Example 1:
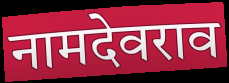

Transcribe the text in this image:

नामदेवराव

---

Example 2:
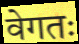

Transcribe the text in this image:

वेगतः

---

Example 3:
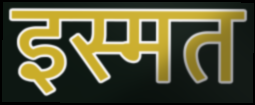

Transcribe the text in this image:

इस्मत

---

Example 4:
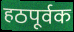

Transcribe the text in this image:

हठपूर्वक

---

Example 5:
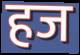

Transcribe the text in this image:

हज